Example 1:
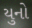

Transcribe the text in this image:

યુનો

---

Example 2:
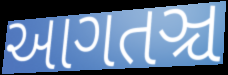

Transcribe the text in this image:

આગતઞ્ચ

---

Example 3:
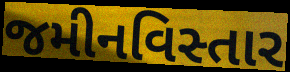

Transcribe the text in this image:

જમીનવિસ્તાર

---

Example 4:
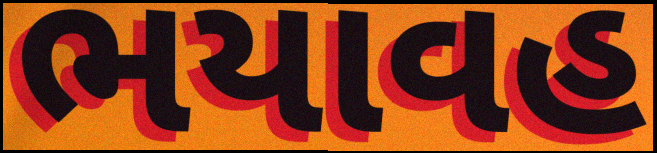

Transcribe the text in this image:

ભયાવહ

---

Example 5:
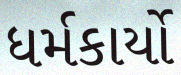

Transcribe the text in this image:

ધર્મકાર્યો